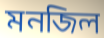
মনজিল